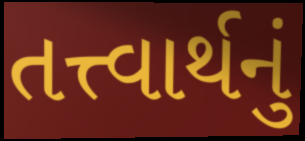
તત્ત્વાર્થનું